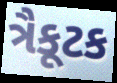
ત્રૈકૂટક